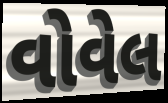
વોવેલ